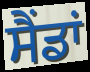
ਸੈਂਡਾਂ